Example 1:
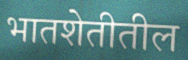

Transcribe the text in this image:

भातशेतीतील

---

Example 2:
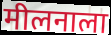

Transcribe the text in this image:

मीलनाला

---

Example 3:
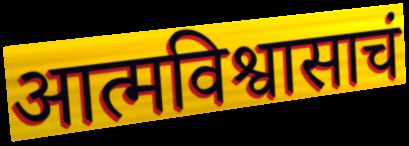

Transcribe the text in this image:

आत्मविश्वासाचं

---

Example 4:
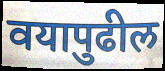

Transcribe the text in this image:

वयापुढील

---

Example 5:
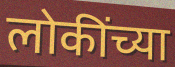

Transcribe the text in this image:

लोकींच्या